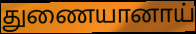
துணையானாய்